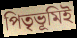
পিতৃভূমিই